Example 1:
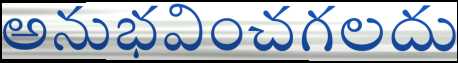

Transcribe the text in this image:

అనుభవించగలదు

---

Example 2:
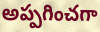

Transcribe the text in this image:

అప్పగించగా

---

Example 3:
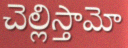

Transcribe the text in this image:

చెల్లిస్తామో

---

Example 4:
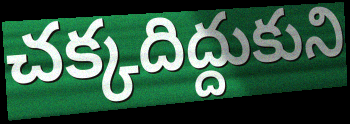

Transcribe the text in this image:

చక్కదిద్దుకుని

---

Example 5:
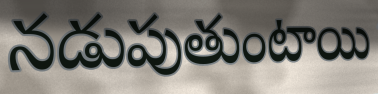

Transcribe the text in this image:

నడుపుతుంటాయి